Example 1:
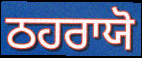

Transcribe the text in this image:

ਠਹਰਾਯੋ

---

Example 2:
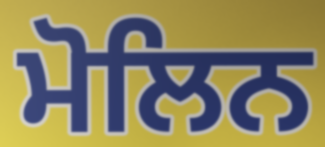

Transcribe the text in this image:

ਮੋਲਿਨ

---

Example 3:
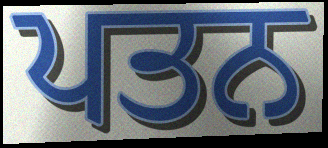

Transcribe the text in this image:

ਪਤਨ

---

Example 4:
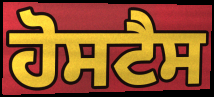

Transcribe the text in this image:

ਹੋਸਟੈਸ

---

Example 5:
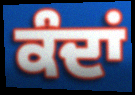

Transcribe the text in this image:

ਕੰਦਾਂ